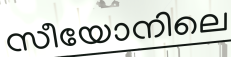
സീയോനിലെ